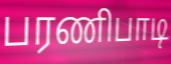
பரணிபாடி